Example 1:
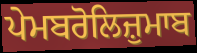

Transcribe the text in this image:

ਪੇਮਬਰੋਲਿਜ਼ੁਮਾਬ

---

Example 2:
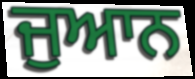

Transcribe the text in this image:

ਜੁਆਨ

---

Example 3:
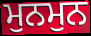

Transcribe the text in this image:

ਮੁਨਮੁਨ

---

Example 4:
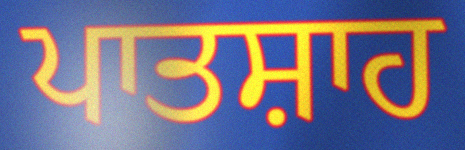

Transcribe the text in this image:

ਪਾਤਸ਼ਾਹ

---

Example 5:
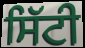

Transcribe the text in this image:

ਸਿੱਟੀ